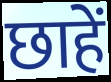
छाहें